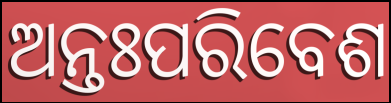
ଅନ୍ତଃପରିବେଶ